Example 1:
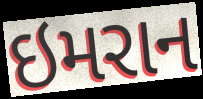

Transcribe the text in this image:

ઇમરાન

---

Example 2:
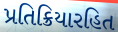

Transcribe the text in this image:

પ્રતિક્રિયારહિત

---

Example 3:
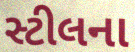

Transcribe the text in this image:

સ્ટીલના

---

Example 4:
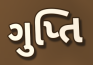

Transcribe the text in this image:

ગુપ્તિ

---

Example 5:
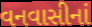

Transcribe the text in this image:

વનવાસીનાં